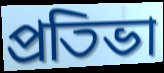
প্রতিভা